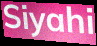
Siyahi